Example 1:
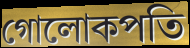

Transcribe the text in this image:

গোলোকপতি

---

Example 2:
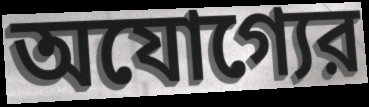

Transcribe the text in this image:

অযোগ্যের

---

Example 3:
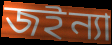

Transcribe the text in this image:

জইন্যা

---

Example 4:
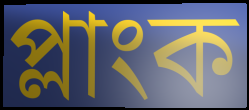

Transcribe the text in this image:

প্লাংক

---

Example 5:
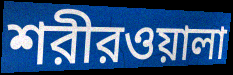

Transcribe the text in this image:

শরীরওয়ালা